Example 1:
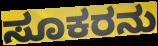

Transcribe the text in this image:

ಸೂಕರನು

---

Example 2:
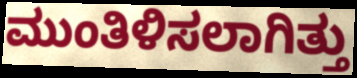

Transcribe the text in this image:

ಮುಂತಿಳಿಸಲಾಗಿತ್ತು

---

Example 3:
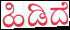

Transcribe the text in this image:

ಹಿಡಿದೆ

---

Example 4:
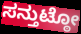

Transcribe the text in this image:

ಸನ್ತುಟ್ಠೋ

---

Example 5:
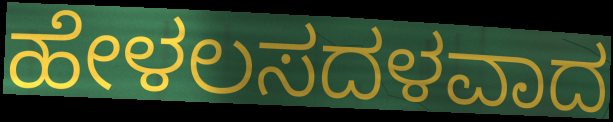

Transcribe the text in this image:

ಹೇಳಲಸದಳವಾದ